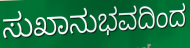
ಸುಖಾನುಭವದಿಂದ